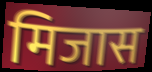
मिजास